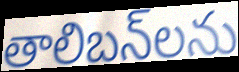
తాలిబన్‌లను